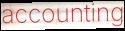
accounting